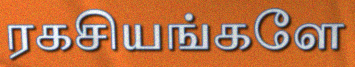
ரகசியங்களே